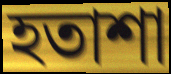
হতাশা